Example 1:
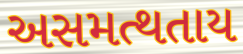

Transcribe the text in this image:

અસમત્થતાય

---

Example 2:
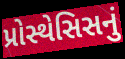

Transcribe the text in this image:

પ્રોસ્થેસિસનું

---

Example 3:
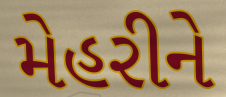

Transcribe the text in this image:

મેહરીને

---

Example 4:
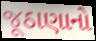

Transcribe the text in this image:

જૂઠાણાનો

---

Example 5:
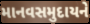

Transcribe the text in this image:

માનવસમુદાયને